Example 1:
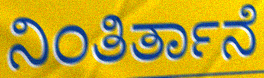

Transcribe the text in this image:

ನಿಂತಿರ್ತಾನೆ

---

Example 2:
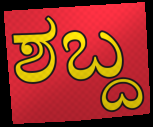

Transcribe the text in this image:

ಶಬ್ದ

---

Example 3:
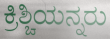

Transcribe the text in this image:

ಕ್ರಿಶ್ಚಿಯನ್ನರು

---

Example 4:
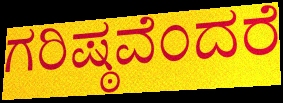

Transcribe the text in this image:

ಗರಿಷ್ಠವೆಂದರೆ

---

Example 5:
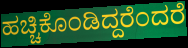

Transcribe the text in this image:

ಹಚ್ಚಿಕೊಂಡಿದ್ದರೆಂದರೆ